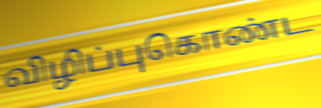
விழிப்புகொண்ட